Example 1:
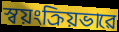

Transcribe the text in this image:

স্বয়ংক্ৰিয়ভাৱে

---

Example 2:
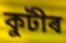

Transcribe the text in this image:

কুটীৰ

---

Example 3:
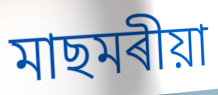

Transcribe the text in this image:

মাছমৰীয়া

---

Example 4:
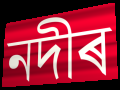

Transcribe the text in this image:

নদীৰ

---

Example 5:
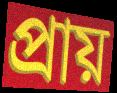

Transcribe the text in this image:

প্ৰায়